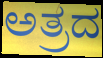
ಅತ್ರದ